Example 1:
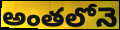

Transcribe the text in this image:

అంతలోనె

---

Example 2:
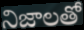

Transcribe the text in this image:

నిజాలతో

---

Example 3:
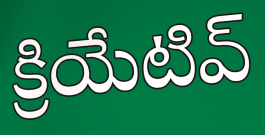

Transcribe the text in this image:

క్రియేటివ్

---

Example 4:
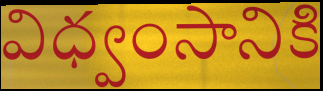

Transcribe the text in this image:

విధ్వంసానికి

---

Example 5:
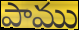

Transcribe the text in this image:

పాము